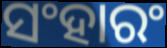
ସଂହାରଂ